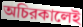
অচিরকালেই